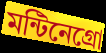
মন্টিনেগ্রো